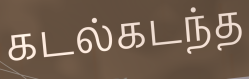
கடல்கடந்த